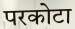
परकोटा